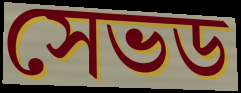
সেভড